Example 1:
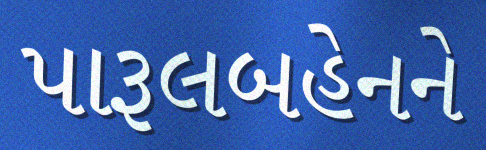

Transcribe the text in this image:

પારૂલબહેનને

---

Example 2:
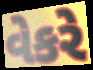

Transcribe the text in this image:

વેકરે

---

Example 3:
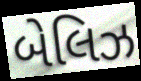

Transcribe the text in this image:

બેલિઝ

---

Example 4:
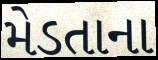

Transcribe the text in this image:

મેડતાના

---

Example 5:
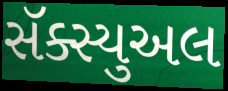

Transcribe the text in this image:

સૅક્સ્યુઅલ